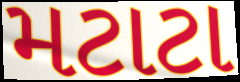
મટાટા